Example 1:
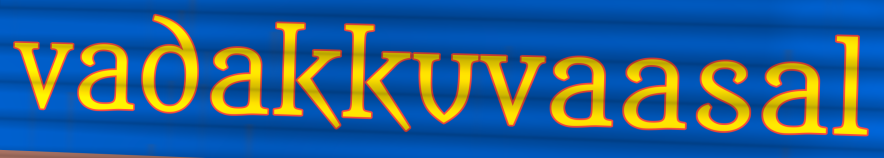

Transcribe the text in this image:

vadakkuvaasal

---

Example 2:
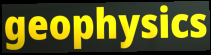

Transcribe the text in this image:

geophysics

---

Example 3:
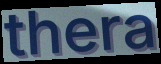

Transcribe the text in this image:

thera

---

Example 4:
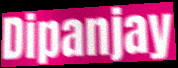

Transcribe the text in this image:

Dipanjay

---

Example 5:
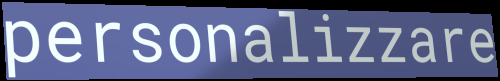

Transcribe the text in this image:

personalizzare